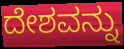
ದೇಶವನ್ನು